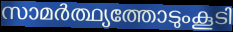
സാമർത്ഥ്യത്തോടുംകൂടി